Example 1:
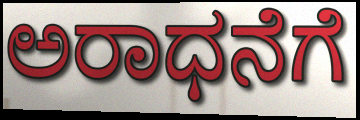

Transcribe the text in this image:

ಅರಾಧನೆಗೆ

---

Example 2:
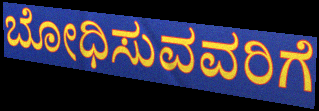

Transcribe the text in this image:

ಬೋಧಿಸುವವರಿಗೆ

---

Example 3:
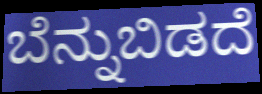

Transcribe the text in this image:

ಬೆನ್ನುಬಿಡದೆ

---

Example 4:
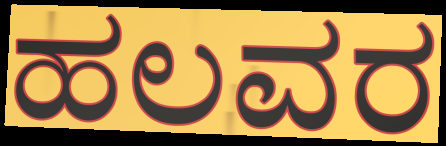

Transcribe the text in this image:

ಹಲವರ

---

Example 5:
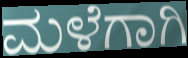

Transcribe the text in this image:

ಮಳೆಗಾಗಿ